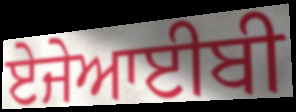
ਏਜੇਆਈਬੀ